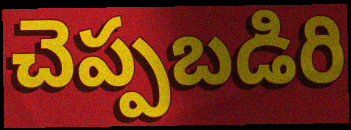
చెప్పబడిరి